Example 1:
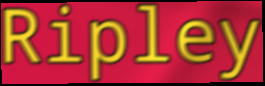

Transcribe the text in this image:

Ripley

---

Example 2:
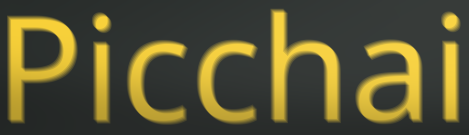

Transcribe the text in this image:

Picchai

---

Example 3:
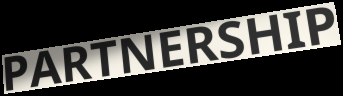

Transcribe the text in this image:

PARTNERSHIP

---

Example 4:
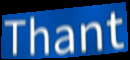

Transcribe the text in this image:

Thant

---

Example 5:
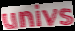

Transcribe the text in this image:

univs